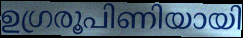
ഉഗ്രരൂപിണിയായി